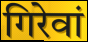
गिरेवां